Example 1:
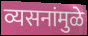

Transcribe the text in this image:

व्यसनांमुळे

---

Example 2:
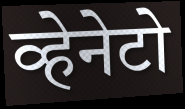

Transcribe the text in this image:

व्हेनेटो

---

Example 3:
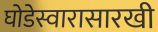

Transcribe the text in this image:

घोडेस्वारासारखी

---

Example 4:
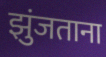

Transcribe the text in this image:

झुंजताना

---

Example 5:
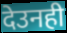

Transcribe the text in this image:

देउनही